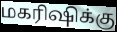
மகரிஷிக்கு